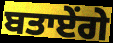
ਬਤਾਏਂਗੇ